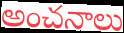
అంచనాలు